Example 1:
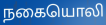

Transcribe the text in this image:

நகையொலி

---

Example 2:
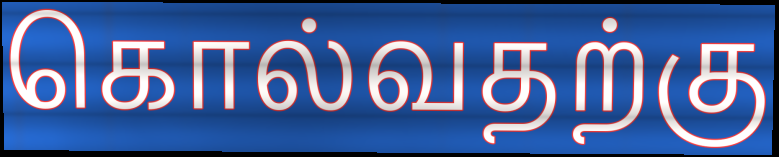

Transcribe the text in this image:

கொல்வதற்கு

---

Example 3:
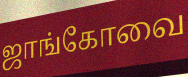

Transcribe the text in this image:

ஜாங்கோவை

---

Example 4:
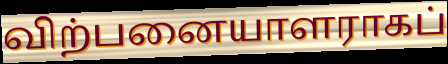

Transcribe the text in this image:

விற்பனையாளராகப்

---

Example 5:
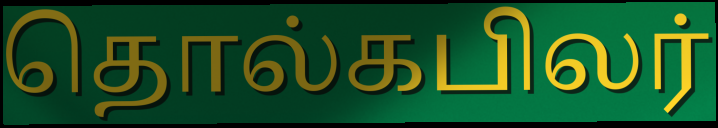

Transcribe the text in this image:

தொல்கபிலர்